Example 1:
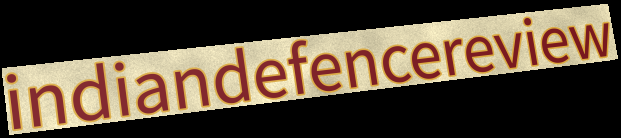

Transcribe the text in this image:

indiandefencereview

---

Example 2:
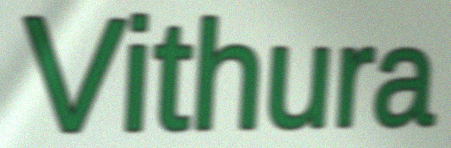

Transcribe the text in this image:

Vithura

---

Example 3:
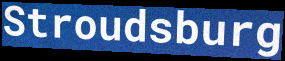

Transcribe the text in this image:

Stroudsburg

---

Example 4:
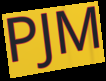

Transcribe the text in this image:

PJM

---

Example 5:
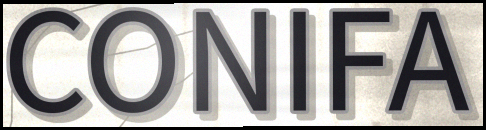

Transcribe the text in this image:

CONIFA